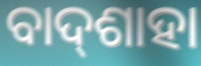
ବାଦ୍‌ଶାହା